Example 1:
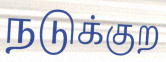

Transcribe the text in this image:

நடுக்குற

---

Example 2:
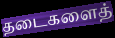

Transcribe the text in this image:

தடைகளைத்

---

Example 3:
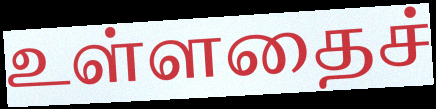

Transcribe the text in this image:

உள்ளதைச்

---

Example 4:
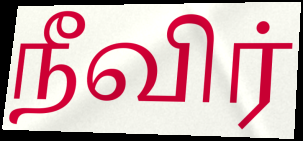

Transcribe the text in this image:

நீவிர்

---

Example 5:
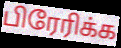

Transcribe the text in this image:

பிரேரிக்க